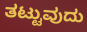
ತಟ್ಟುವುದು